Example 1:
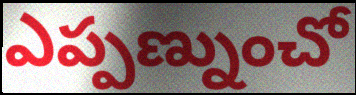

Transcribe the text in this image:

ఎప్పణ్నుంచో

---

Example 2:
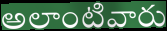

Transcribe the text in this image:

అలాంటివారు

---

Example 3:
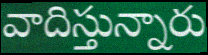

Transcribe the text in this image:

వాదిస్తున్నారు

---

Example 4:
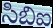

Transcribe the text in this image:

సిబిఐ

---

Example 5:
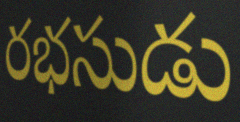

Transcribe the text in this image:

రభసుడు